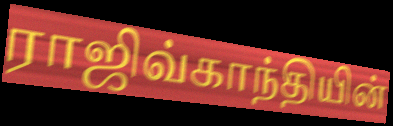
ராஜிவ்காந்தியின்